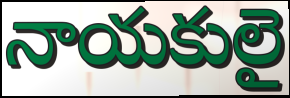
నాయకులై